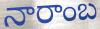
నారాంబ